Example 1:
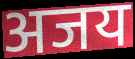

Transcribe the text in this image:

अजय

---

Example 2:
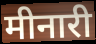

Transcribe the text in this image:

मीनारी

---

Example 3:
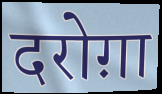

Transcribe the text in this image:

दरोग़ा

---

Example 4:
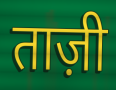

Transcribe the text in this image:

ताज़ी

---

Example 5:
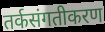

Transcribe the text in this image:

तर्कसंगतीकरण